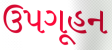
ઉપગૂહન